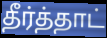
தீர்த்தாட்